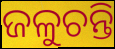
ଜଳୁଚନ୍ତି